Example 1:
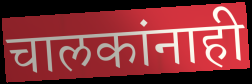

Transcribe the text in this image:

चालकांनाही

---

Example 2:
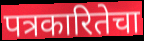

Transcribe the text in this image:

पत्रकारितेचा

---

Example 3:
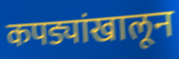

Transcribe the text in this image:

कपड्यांखालून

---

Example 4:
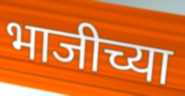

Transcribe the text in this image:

भाजीच्या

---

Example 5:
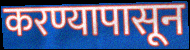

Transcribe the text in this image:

करण्यापासून